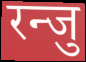
रन्जु